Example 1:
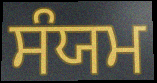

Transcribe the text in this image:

ਸੰਯਮ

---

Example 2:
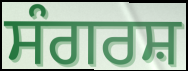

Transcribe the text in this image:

ਸੰਗਰਸ਼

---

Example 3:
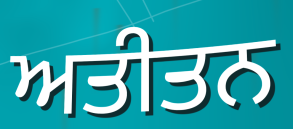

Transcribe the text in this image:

ਅਤੀਤਨ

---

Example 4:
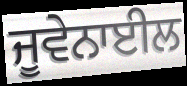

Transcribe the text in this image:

ਜੂਵੇਨਾਈਲ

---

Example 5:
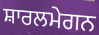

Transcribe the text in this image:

ਸ਼ਾਰਲਮੇਗਨ